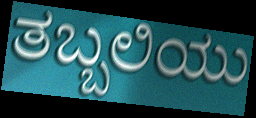
ತಬ್ಬಲಿಯು